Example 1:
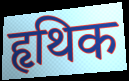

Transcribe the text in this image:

हृथिक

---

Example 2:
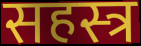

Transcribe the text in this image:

सहस्‍त्र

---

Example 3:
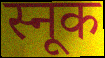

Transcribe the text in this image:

स्नूक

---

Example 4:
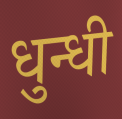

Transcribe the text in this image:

धुन्धी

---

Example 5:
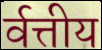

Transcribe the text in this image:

र्वत्तीय